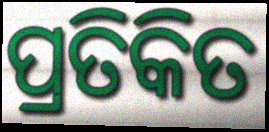
ପ୍ରତିକିତ